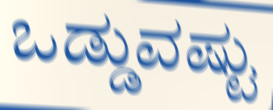
ಒಡ್ಡುವಷ್ಟು